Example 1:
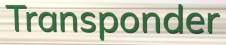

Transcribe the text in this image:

Transponder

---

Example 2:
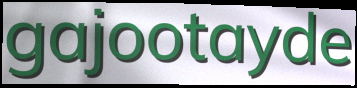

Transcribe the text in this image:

gajootayde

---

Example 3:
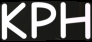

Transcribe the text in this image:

KPH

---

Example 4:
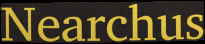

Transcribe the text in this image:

Nearchus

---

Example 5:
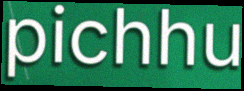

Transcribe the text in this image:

pichhu